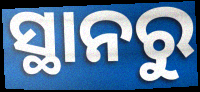
ସ୍ଥାନରୁ